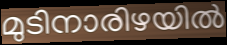
മുടിനാരിഴയിൽ